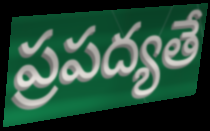
ప్రపద్యతే